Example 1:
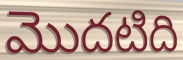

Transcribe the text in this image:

మొదటిది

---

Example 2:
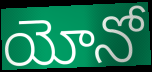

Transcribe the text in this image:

యోనో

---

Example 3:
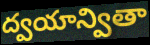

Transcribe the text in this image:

ద్వయాన్వితా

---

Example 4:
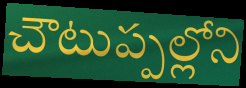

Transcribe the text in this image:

చౌటుప్పల్లోని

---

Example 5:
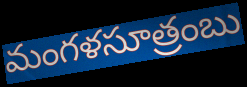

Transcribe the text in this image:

మంగళసూత్రంబు